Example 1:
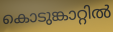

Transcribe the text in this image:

കൊടുങ്കാറ്റിൽ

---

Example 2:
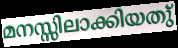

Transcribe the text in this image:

മനസ്സിലാക്കിയതു്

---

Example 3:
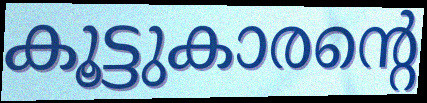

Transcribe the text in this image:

കൂട്ടുകാരന്റെ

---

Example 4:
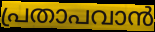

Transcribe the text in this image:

പ്രതാപവാൻ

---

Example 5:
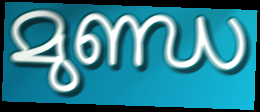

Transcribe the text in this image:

മുണ്ഡ